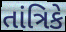
તાંત્રિકે